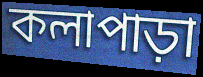
কলাপাড়া